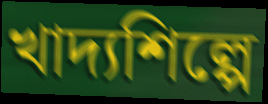
খাদ্যশিল্পে